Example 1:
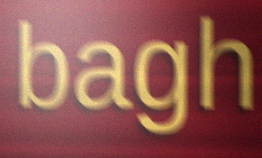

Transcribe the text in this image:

bagh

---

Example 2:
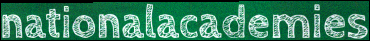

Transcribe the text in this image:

nationalacademies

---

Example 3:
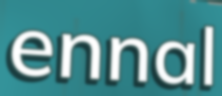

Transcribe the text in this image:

ennal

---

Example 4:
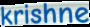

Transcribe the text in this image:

krishne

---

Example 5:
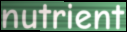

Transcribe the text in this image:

nutrient